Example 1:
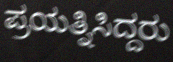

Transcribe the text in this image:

ಪ್ರಯತ್ನಿಸಿದ್ದರು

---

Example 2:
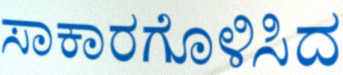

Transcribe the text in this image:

ಸಾಕಾರಗೊಳಿಸಿದ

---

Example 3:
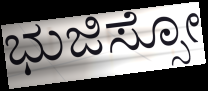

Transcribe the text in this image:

ಭುಜಿಸ್ಸೋ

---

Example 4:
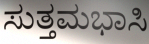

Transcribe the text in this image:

ಸುತ್ತಮಭಾಸಿ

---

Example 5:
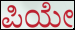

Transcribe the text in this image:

ಪಿಯೇ